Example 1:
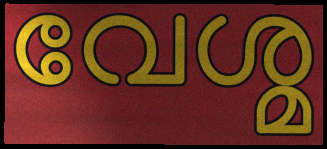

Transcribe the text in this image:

വേശ്മ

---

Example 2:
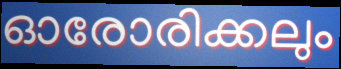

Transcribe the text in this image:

ഓരോരിക്കലും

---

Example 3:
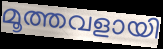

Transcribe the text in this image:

മൂത്തവളായി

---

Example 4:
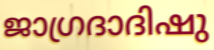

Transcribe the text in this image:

ജാഗ്രദാദിഷു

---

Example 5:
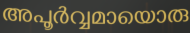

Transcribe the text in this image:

അപൂർവ്വമായൊരു